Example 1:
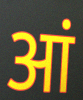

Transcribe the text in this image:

आं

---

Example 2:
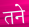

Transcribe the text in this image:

तने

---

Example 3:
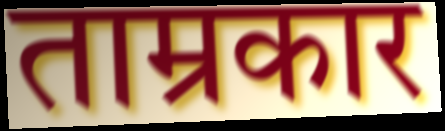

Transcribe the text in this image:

ताम्रकार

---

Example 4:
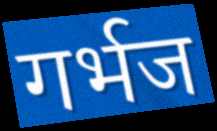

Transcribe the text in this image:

गर्भज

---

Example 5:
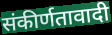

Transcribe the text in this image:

संकीर्णतावादी